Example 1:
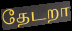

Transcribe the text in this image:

தேடறா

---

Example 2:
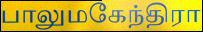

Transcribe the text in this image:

பாலுமகேந்திரா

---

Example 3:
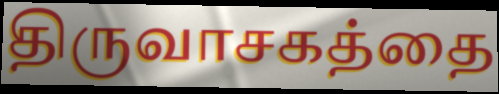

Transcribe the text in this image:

திருவாசகத்தை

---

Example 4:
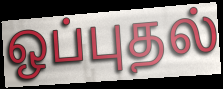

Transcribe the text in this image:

ஒப்புதல்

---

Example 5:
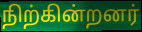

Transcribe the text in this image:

நிற்கின்றனர்